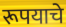
रूपयाचे